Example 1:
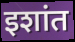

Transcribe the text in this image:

इशांत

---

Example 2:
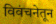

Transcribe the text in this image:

विवंचनेतून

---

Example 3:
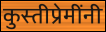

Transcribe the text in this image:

कुस्तीप्रेमींनी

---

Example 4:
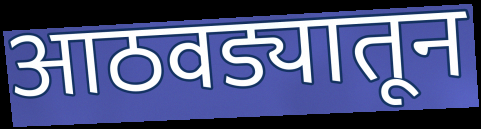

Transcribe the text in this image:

आठवड्यातून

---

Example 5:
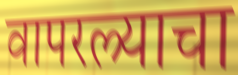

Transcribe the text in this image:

वापरल्याचा